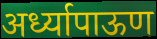
अर्ध्यापाऊण